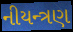
નીયન્ત્રણ